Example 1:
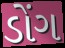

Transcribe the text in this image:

ડોંગ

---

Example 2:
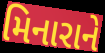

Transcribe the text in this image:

મિનારાને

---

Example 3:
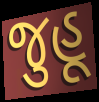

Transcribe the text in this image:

જુહૂ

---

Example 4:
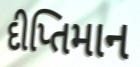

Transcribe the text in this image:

દીપ્તિમાન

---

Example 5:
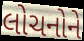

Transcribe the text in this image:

લોચનોને